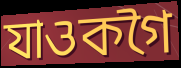
যাওকগৈ